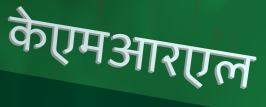
केएमआरएल